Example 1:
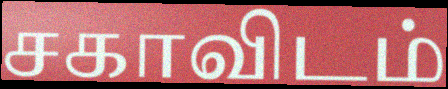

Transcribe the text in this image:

சகாவிடம்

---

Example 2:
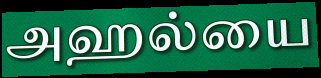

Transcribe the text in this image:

அஹல்யை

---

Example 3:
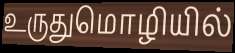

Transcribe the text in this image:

உருதுமொழியில்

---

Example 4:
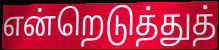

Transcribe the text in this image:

என்றெடுத்துத்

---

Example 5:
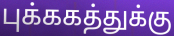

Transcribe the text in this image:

புக்ககத்துக்கு